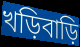
খড়িবাড়ি